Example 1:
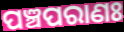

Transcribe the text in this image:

ପଞ୍ଚପରାଣଃ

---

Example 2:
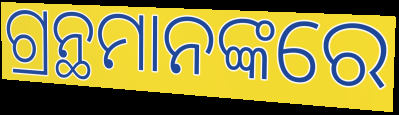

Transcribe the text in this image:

ଗ୍ରନ୍ଥମାନଙ୍କରେ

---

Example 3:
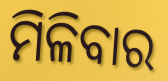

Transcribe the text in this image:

ମିଳିବାର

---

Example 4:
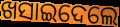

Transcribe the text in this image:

ଖସାଇଦେଲେ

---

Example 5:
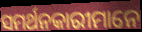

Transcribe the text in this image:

ସମର୍ଥନକାରୀମାନେ